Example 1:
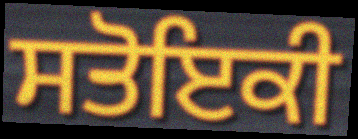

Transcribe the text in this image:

ਸਤੋਇਕੀ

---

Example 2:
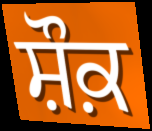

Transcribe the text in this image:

ਸ਼ੌਕ਼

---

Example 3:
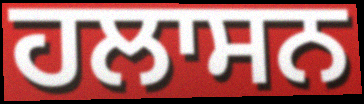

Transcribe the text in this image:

ਹਲਾਸਨ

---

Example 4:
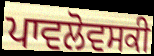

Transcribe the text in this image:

ਪਾਵਲੋਵਸਕੀ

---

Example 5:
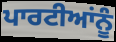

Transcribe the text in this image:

ਪਾਰਟੀਆਂਨੂੰ